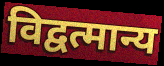
विद्वत्मान्य